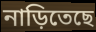
নাড়িতেছে